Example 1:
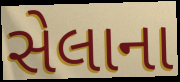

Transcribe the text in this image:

સેલાના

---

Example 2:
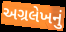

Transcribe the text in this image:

અગ્રલેખનું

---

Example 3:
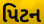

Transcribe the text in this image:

પિટન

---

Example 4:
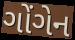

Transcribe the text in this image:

ગોંગેન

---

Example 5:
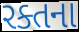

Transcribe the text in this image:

રક્તના